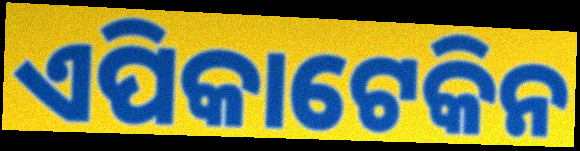
ଏପିକାଟେକିନ